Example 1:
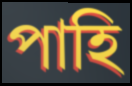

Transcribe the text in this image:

পাহি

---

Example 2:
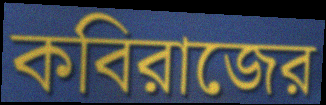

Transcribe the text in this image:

কবিরাজের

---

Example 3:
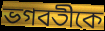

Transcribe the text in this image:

ভগবতীকে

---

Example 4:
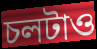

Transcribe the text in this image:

চলটাও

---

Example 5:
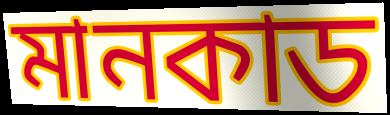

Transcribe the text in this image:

মানকাড